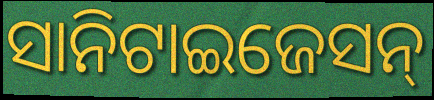
ସାନିଟାଇଜେସନ୍